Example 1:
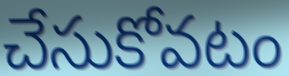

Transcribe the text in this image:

చేసుకోవటం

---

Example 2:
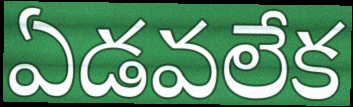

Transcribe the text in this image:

ఏడవలేక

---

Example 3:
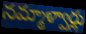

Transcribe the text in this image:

నమ్మాళ్వార్లు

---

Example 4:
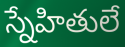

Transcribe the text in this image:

స్నేహితులే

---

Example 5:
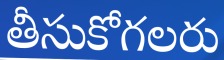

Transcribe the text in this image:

తీసుకోగలరు